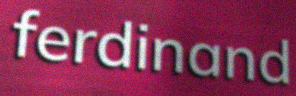
ferdinand